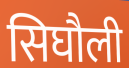
सिघौली